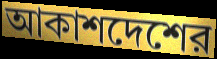
আকাশদেশের